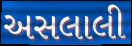
અસલાલી